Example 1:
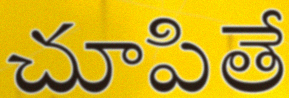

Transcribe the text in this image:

చూపితే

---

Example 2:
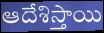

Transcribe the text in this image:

ఆదేశిస్తాయి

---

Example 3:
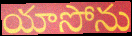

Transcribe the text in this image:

యాసోను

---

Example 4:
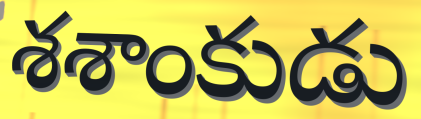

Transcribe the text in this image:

శశాంకుడు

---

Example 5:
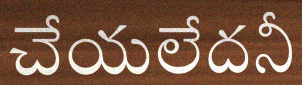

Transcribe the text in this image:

చేయలేదనీ